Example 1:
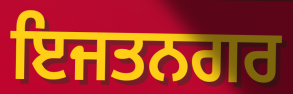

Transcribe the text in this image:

ਇਜਤਨਗਰ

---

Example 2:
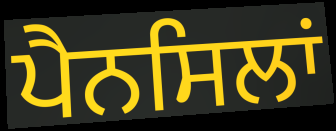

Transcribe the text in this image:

ਪੈਨਸਿਲਾਂ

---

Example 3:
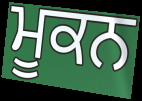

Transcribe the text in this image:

ਮੂਕਨ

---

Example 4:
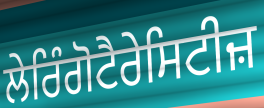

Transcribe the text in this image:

ਲੇਰਿੰਗੋਟੈਰੇਸਿਟੀਜ਼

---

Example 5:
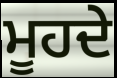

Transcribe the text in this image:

ਮੂਹਦੇ